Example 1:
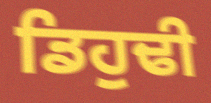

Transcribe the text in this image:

ਡਿਹੁਢੀ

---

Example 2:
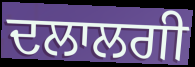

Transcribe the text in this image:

ਦਲਾਲਗੀ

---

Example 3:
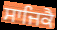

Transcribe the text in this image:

ਸਾਜਿਕੈ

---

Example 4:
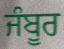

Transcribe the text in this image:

ਜੰਬੂਰ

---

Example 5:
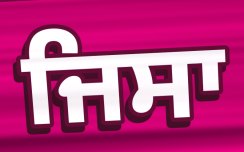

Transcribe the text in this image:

ਜਿਸਾ